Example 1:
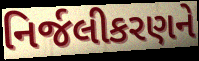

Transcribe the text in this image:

નિર્જલીકરણને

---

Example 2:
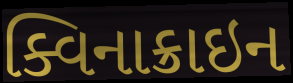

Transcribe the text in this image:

ક્વિનાક્રાઇન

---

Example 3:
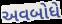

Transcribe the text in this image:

અવબોધે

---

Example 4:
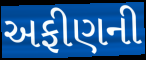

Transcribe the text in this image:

અફીણની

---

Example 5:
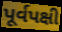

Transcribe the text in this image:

પૂર્વપક્ષી